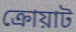
ক্রোয়াট